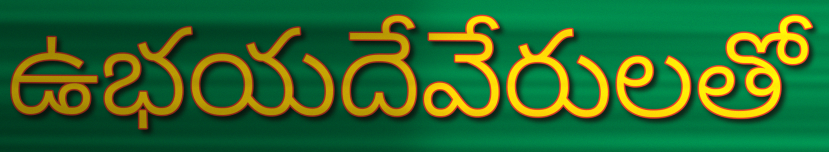
ఉభయదేవేరులతో